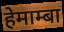
हेमाम्बा